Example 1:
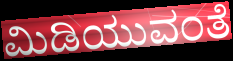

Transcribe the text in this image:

ಮಿಡಿಯುವಂತೆ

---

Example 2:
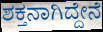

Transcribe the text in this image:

ಶಕ್ತನಾಗಿದ್ದೇನೆ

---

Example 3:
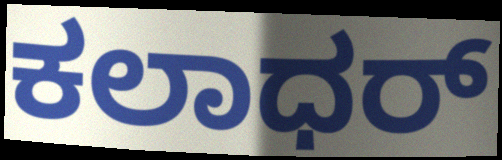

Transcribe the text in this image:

ಕಲಾಧರ್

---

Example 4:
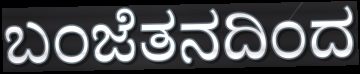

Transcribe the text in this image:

ಬಂಜೆತನದಿಂದ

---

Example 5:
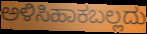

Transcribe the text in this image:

ಅಳಿಸಿಹಾಕಬಲ್ಲದು